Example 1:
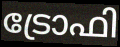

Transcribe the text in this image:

ട്രോഫി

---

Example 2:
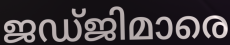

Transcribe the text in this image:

ജഡ്ജിമാരെ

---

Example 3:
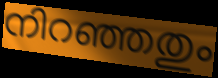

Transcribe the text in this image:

നിറഞ്ഞതും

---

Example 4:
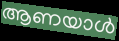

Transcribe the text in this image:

ആണയാൾ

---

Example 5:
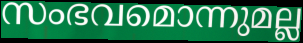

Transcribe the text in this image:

സംഭവമൊന്നുമല്ല